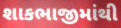
શાકભાજીમાંથી